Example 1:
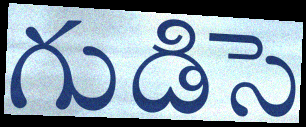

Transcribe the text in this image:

గుడిసె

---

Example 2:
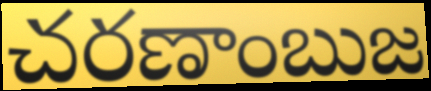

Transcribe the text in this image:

చరణాంబుజ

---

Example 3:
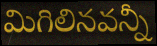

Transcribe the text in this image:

మిగిలినవన్నీ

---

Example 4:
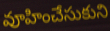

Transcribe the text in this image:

వూహించేసుకుని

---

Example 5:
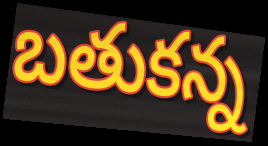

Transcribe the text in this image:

బతుకన్న